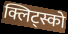
क्लिट्स्को